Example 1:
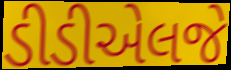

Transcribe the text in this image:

ડીડીએલજે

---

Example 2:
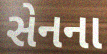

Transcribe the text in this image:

સેનના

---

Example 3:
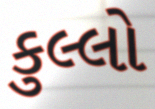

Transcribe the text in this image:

કુલ્લો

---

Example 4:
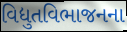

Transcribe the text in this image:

વિદ્યુતવિભાજનના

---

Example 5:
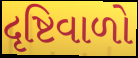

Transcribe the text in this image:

દૃષ્ટિવાળો